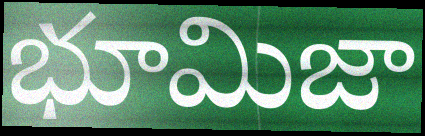
భూమిజా